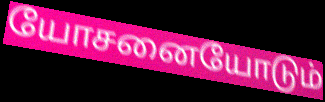
யோசனையோடும்